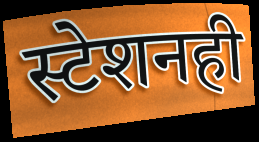
स्टेशनही